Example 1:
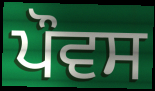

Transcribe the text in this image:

ਪੌਵਸ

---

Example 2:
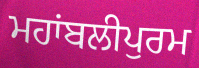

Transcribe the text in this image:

ਮਹਾਂਬਲੀਪੁਰਮ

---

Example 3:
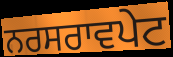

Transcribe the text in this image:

ਨਰਸਰਾਵਪੇਟ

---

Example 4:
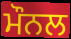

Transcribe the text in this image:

ਮੌਨਲ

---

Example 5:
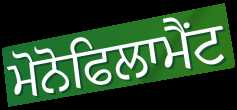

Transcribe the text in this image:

ਮੋਨੋਫਿਲਾਮੈਂਟ